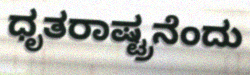
ಧೃತರಾಷ್ಟ್ರನೆಂದು